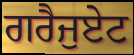
ਗਰੈਜੁਏਟ